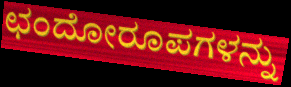
ಛಂದೋರೂಪಗಳನ್ನು